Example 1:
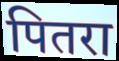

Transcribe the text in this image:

पितरा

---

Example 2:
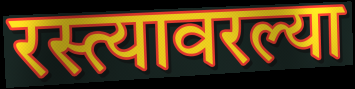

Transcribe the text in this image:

रस्त्यावरल्या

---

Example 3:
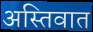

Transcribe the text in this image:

अस्तिवात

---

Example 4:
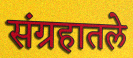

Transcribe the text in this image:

संग्रहातले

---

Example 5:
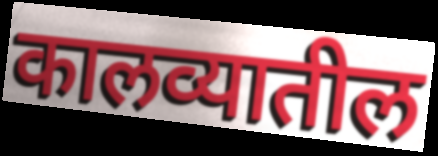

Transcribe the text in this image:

कालव्यातील